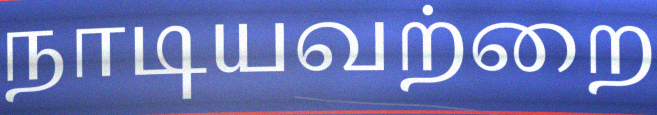
நாடியவற்றை